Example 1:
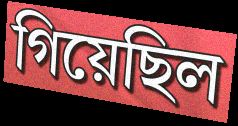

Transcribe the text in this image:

গিয়েছিল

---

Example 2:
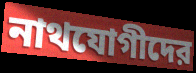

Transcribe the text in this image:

নাথযোগীদের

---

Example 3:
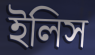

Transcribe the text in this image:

ইলিস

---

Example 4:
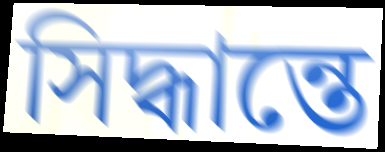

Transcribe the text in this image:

সিদ্ধান্তে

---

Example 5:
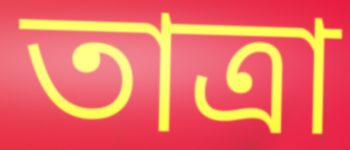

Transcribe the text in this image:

তাত্রা